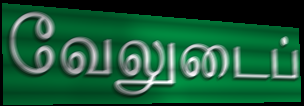
வேலுடைப்